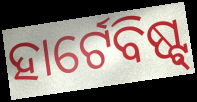
ହାର୍ଟେବିଷ୍ଟ୍